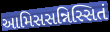
આમિસસન્નિસ્સિતં